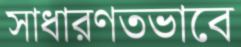
সাধারণতভাবে